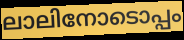
ലാലിനോടൊപ്പം